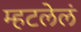
म्हटलेलं